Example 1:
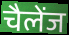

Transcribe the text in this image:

चैलेंज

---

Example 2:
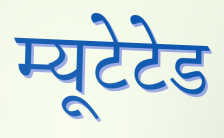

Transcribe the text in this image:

म्यूटेटेड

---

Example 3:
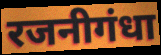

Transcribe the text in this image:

रजनीगंधा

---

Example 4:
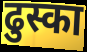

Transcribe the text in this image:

ढुस्का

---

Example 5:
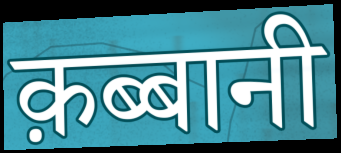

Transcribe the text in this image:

क़ब्बानी